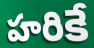
హరికే